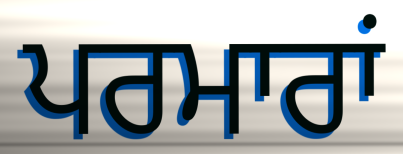
ਪਰਮਾਰਾਂ